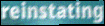
reinstating